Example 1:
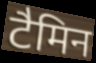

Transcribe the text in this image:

टैमिन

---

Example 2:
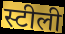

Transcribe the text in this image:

स्टीली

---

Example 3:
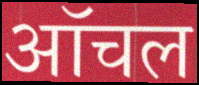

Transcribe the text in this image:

ऑचल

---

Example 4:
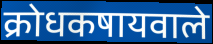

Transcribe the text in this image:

क्रोधकषायवाले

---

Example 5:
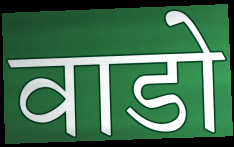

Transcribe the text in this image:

वाडो